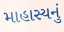
માહાસ્યનું